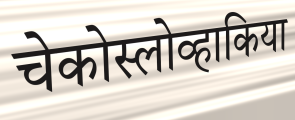
चेकोस्लोव्हाकिया